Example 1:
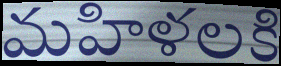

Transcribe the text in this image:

మహిళలకి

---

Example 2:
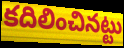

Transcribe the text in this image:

కదిలించినట్టు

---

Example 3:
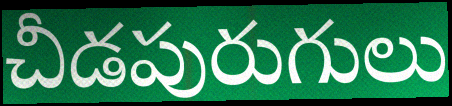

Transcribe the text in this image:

చీడపురుగులు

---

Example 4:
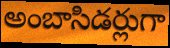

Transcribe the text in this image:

అంబాసిడర్లుగా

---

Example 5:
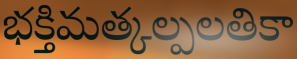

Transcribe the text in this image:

భక్తిమత్కల్పలతికా